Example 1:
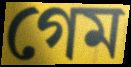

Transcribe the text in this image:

গেম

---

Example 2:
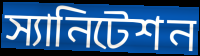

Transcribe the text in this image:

স্যানিটেশন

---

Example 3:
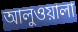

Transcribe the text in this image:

আলুওয়ালা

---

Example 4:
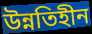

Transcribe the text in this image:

উন্নতিহীন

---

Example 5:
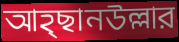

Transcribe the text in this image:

আহ্ছানউল্লার